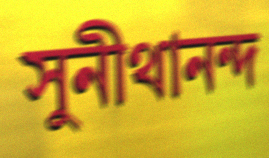
সুনীথানন্দ